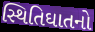
સ્થિતિઘાતનો